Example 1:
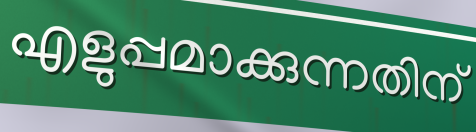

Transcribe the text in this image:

എളുപ്പമാക്കുന്നതിന്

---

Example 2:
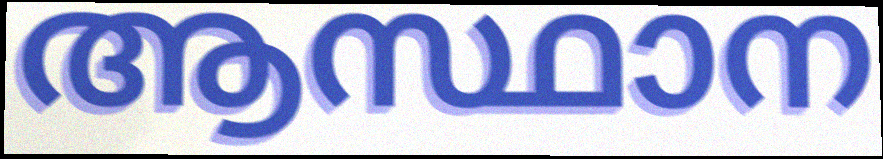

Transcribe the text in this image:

ആസ്ഥാന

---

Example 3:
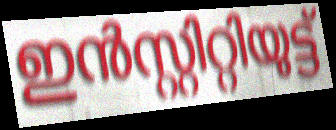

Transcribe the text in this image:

ഇൻസ്റ്റിറ്റിയുട്ട്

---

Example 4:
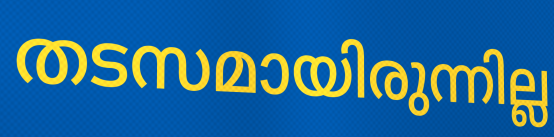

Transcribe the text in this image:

തടസമായിരുന്നില്ല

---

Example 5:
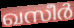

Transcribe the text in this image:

ഖസീർ